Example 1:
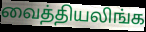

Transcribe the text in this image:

வைத்தியலிங்க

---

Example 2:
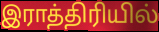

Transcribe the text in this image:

இராத்திரியில்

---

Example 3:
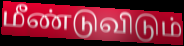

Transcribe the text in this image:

மீண்டுவிடும்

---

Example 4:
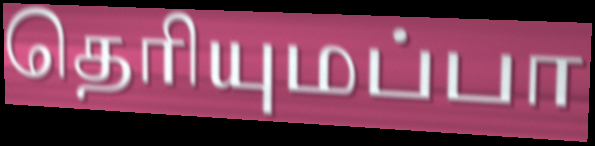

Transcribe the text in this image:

தெரியுமப்பா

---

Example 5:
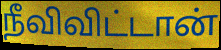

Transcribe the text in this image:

நீவிவிட்டான்